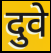
दुवे